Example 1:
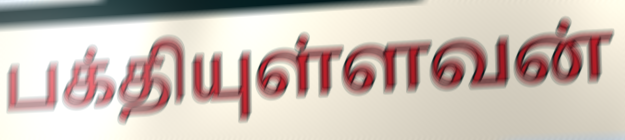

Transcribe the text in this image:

பக்தியுள்ளவன்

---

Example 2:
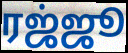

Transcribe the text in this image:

ரஜ்ஜூ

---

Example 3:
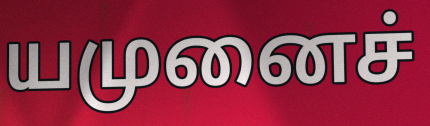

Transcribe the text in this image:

யமுனைச்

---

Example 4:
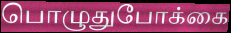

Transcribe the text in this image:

பொழுதுபோக்கை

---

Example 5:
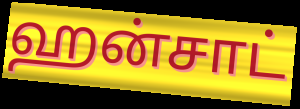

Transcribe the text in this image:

ஹன்சாட்